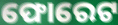
ଫୋରେଟ